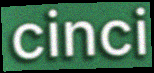
cinci